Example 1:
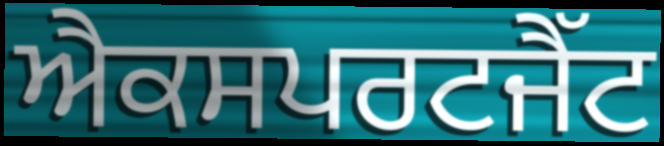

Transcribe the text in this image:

ਐਕਸਪਰਟਜੈੱਟ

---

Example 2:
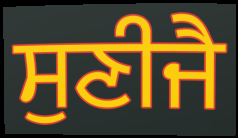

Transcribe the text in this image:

ਸੁਣੀਜੈ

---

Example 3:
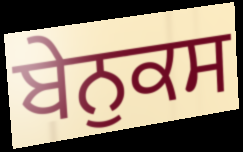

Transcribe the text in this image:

ਬੇਨੁਕਸ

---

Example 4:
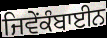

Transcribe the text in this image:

ਜਿਵੇਂਕੰਬਾਈਨ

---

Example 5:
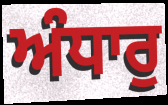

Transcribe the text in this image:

ਅੰਧਾਰੁ